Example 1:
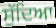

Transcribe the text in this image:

ਸੁੱਦਿਆ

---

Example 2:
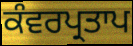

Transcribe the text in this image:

ਕੰਵਰਪ੍ਰਤਾਪ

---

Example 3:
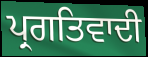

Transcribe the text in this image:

ਪ੍ਰਗਤਿਵਾਦੀ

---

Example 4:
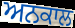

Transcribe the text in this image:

ਅਨਕਾਲ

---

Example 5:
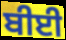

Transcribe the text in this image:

ਬੀਈ